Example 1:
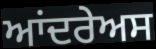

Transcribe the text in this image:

ਆਂਦਰੇਅਸ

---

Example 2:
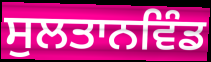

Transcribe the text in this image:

ਸੁਲਤਾਨਵਿੰਡ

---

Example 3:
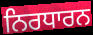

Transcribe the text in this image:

ਨਿਰਧਾਰਨ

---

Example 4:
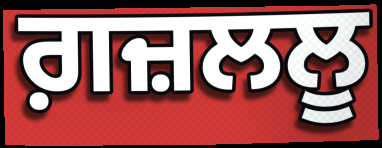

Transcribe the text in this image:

ਗ਼ਜ਼ਲਲੂ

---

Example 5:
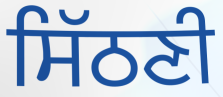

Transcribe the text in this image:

ਸਿੱਠਣੀ